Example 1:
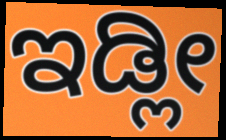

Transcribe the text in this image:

ಇಡ್ಲೀ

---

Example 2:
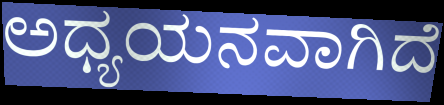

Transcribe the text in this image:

ಅಧ್ಯಯನವಾಗಿದೆ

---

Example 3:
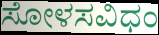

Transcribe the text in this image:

ಸೋಳಸವಿಧಂ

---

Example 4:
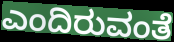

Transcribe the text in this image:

ಎಂದಿರುವಂತೆ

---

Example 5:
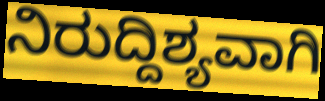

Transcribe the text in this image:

ನಿರುದ್ದಿಶ್ಯವಾಗಿ